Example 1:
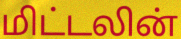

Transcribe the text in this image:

மிட்டலின்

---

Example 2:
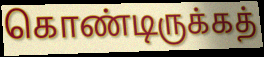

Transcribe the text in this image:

கொண்டிருக்கத்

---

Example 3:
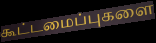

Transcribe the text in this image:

கூட்டமைப்புகளை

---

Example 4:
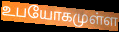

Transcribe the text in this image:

உபயோகமுள்ள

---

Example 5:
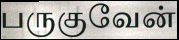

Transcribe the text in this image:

பருகுவேன்